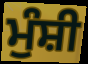
ਮੁੰਸ਼ੀ